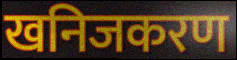
खनिजकरण